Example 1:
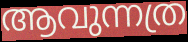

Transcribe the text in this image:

ആവുന്നത്ര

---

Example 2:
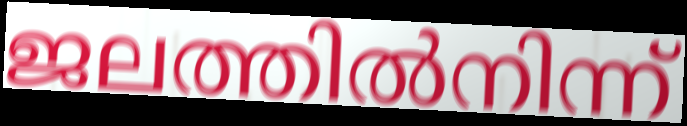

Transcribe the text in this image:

ജലത്തിൽനിന്ന്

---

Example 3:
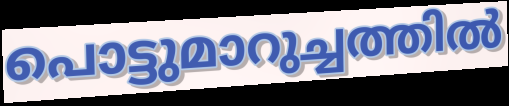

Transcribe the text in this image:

പൊട്ടുമാറുച്ചത്തിൽ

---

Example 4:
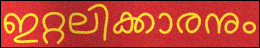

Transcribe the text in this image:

ഇറ്റലിക്കാരനും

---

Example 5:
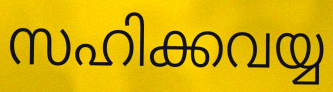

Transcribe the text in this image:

സഹിക്കവയ്യ